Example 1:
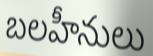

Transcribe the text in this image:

బలహీనులు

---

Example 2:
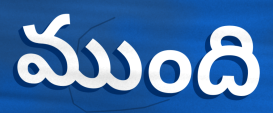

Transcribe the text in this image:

ముంది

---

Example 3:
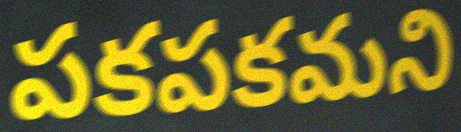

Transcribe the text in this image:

పకపకమని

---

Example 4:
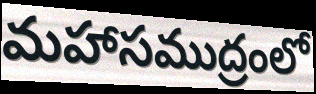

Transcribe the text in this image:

మహాసముద్రంలో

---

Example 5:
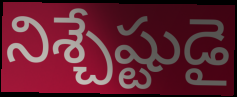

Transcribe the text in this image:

నిశ్చేష్టుడై